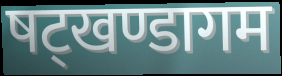
षट्खण्डागम